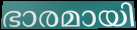
ഭാരമായി